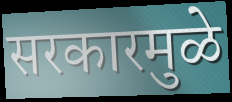
सरकारमुळे